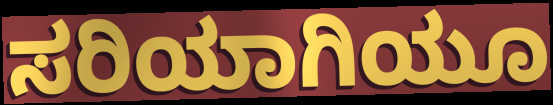
ಸರಿಯಾಗಿಯೂ